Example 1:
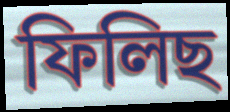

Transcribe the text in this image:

ফিলিছ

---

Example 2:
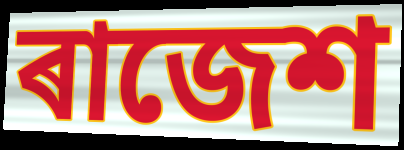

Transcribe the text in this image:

ৰাজেশ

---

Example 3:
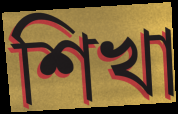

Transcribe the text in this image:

শিখা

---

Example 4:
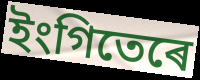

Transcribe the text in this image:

ইংগিতেৰে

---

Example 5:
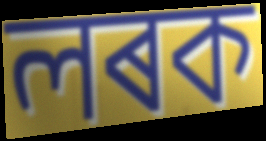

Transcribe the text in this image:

লৰক